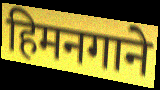
हिमनगाने